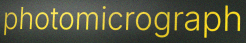
photomicrograph